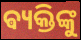
ଵ୍ୟକ୍ତିଙ୍କୁ